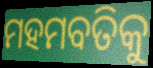
ମହମବତିକୁ